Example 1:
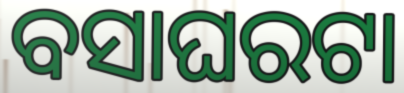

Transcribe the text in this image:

ବସାଘରଟା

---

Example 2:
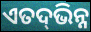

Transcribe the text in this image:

ଏତଦ୍‍ଭିନ୍ନ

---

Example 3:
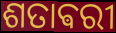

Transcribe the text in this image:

ଶତାଵରୀ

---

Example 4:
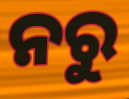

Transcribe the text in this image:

ନରୁ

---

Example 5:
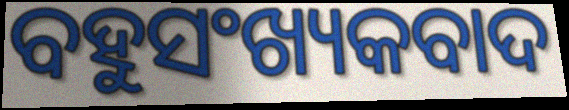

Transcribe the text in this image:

ବହୁସଂଖ୍ୟକବାଦ